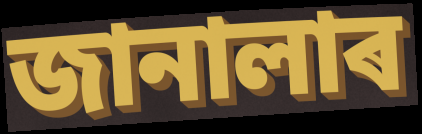
জানালাৰ